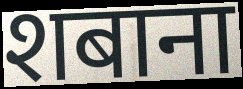
शबाना